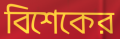
বিশেকের